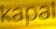
kapal